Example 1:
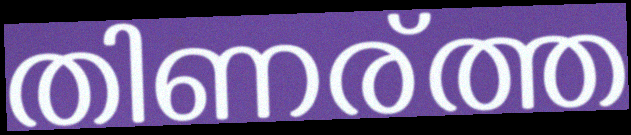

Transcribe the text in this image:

തിണര്ത്ത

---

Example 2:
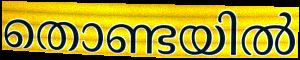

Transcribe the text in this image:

തൊണ്ടയിൽ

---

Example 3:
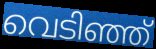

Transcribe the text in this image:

വെടിഞ്ഞ്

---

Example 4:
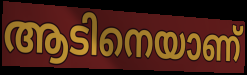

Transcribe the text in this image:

ആടിനെയാണ്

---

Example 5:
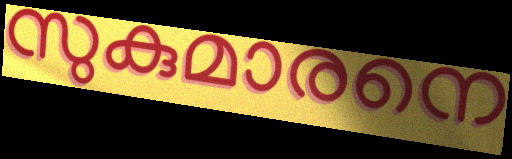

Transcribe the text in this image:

സുകുമാരനെ